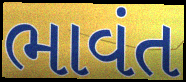
ભાવંત